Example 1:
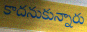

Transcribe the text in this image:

కాదనుకున్నారు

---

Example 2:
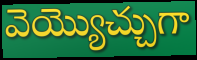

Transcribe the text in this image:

వెయ్యొచ్చుగా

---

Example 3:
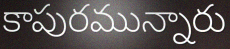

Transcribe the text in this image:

కాపురమున్నారు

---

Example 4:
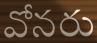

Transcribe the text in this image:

వోనరు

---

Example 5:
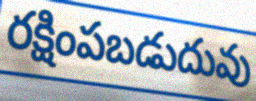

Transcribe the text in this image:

రక్షింపబడుదువు